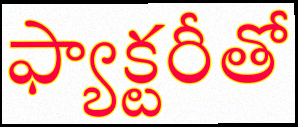
ఫ్యాక్టరీతో